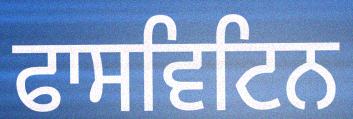
ਫਾਸਵਿਟਿਨ